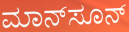
ಮಾನ್‌ಸೂನ್